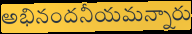
అభినందనీయమన్నారు